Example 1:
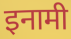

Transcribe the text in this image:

इनामी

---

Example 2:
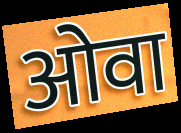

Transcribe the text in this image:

ओवा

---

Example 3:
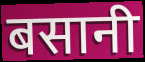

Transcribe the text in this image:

बसानी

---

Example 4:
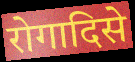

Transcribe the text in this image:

रोगादिसे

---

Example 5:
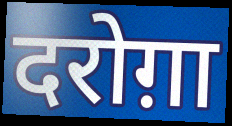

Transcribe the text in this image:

दरोग़ा